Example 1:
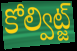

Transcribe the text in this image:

కోల్విట్జ్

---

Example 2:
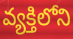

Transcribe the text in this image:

వ్యక్తిలోని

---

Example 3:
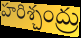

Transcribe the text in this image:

హరిశ్చంద్రు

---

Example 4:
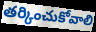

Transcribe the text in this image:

తర్కించుకోవాలి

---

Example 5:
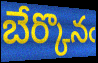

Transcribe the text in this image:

బేర్కొనఁ